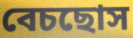
বেচছোস